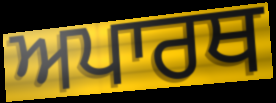
ਅਪਾਰਥ